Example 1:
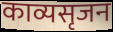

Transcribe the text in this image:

काव्यसृजन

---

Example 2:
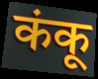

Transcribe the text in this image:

कंकू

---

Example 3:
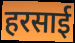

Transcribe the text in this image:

हरसाई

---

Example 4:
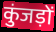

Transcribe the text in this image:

कुंजड़ों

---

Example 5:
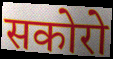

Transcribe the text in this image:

सकोरो